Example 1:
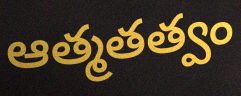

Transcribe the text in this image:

ఆత్మతత్వం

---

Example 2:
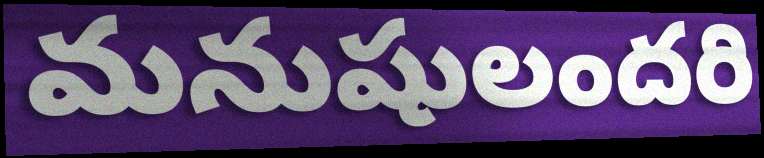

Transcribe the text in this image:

మనుషులందరి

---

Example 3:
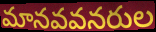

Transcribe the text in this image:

మానవవనరుల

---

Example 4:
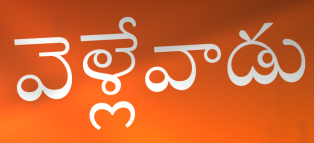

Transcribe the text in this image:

వెళ్లేవాడు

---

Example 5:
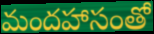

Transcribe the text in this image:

మందహాసంతో